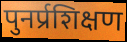
पुनर्प्रशिक्षण